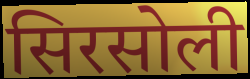
सिरसोली